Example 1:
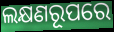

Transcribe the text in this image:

ଲକ୍ଷଣରୂପରେ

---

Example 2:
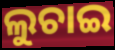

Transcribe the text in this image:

ଲୁଚାଇ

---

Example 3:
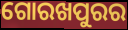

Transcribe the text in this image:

ଗୋରଖପୁରର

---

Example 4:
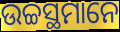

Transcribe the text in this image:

ଉଚ୍ଚସ୍ଥମାନେ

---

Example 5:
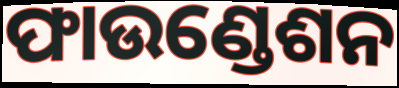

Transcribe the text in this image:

ଫାଉଣ୍ଡେଶନ